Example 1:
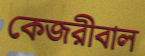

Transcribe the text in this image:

কেজরীবাল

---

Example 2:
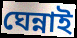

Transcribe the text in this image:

ঘেন্নাই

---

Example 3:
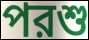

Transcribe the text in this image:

পরশু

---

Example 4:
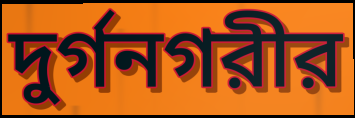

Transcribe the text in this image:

দুর্গনগরীর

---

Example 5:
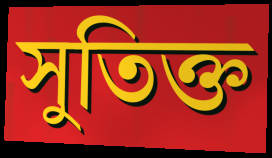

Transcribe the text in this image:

সুতিক্ত